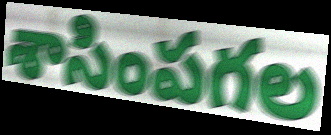
శాసింపగల